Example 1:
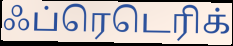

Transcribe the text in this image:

ஃப்ரெடெரிக்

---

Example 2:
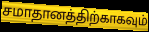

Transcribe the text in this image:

சமாதானத்திற்காகவும்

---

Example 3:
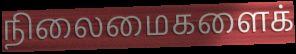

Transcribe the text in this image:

நிலைமைகளைக்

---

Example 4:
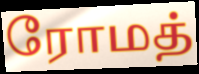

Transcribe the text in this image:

ரோமத்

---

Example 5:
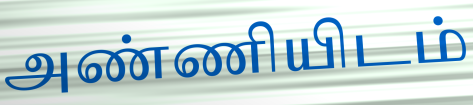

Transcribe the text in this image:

அண்ணியிடம்